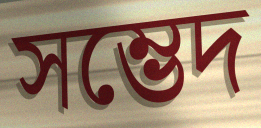
সম্ভেদ